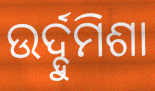
ଉର୍ଦ୍ଦୁମିଶା